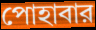
পোহাবার